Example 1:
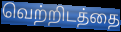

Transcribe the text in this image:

வெற்றிடத்தை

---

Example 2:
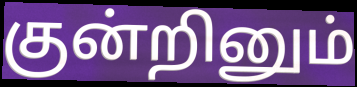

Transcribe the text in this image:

குன்றினும்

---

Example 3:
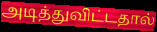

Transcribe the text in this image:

அடித்துவிட்டதால்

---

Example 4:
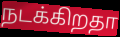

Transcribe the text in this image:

நடக்கிறதா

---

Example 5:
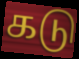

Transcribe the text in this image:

கடு